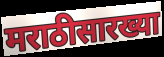
मराठीसारख्या